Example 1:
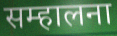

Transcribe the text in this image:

सम्हालना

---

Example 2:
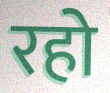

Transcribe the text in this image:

रहो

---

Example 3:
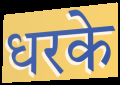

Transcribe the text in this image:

धरके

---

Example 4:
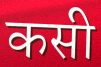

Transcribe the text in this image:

कसी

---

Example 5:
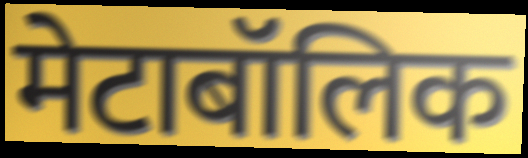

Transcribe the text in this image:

मेटाबॉलिक